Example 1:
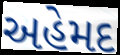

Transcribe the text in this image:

અહેમદ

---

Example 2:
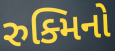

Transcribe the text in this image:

રુક્મિનો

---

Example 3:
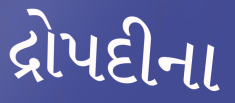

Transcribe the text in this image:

દ્રોપદીના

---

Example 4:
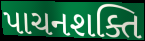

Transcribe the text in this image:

પાચનશક્તિ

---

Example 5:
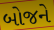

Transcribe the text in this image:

બોજને